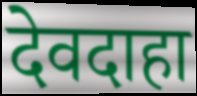
देवदाहा